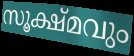
സൂക്ഷ്മവും